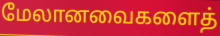
மேலானவைகளைத்